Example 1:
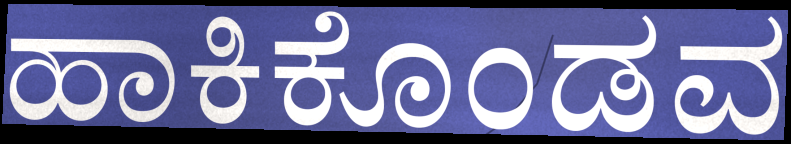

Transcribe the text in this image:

ಹಾಕಿಕೊಂಡವ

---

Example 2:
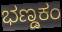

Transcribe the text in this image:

ಭಣ್ಡಕಂ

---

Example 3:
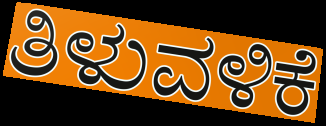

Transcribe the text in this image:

ತಿಳುವಳಿಕೆ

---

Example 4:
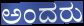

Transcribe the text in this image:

ಅಂದರು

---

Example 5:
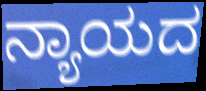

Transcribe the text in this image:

ನ್ಯಾಯದ